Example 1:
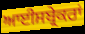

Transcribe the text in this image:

ਆਈਸਬ੍ਰੇਕਰਾਂ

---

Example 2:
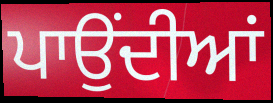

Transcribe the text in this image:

ਪਾਉਂਦੀਆਂ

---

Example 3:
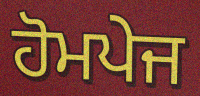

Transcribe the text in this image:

ਹੋਮਪੇਜ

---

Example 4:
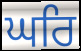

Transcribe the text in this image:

ਘਰਿ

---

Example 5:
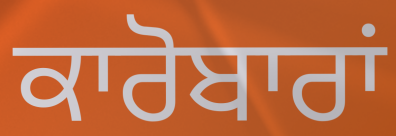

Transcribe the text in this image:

ਕਾਰੋਬਾਰਾਂ